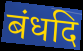
बंधदि